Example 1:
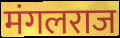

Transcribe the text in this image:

मंगलराज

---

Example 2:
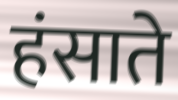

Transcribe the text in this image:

हंसाते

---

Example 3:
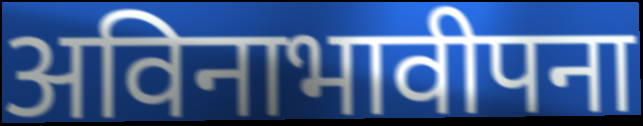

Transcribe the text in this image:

अविनाभावीपना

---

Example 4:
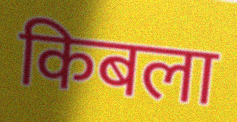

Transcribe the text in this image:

किबला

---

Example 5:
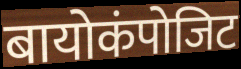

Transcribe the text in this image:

बायोकंपोजिट